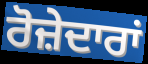
ਰੋਜ਼ੇਦਾਰਾਂ